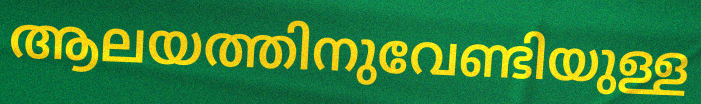
ആലയത്തിനുവേണ്ടിയുള്ള